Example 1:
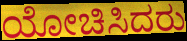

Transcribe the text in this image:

ಯೋಚಿಸಿದರು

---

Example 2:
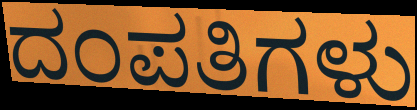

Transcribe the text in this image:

ದಂಪತಿಗಳು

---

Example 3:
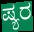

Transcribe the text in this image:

ಷ್ಯರ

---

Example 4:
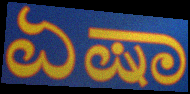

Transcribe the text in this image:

ಏಷಾ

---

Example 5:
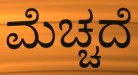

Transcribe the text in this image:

ಮೆಚ್ಚದೆ